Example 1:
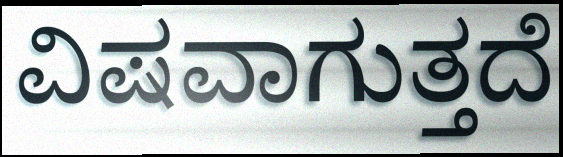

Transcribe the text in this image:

ವಿಷವಾಗುತ್ತದೆ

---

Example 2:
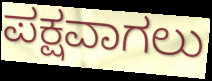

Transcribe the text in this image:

ಪಕ್ಷವಾಗಲು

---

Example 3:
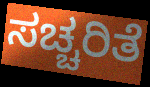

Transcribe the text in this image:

ಸಚ್ಚರಿತೆ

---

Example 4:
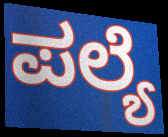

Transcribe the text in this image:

ಪಲ್ಯೆ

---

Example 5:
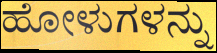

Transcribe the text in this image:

ಹೋಳುಗಳನ್ನು